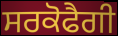
ਸਰਕੋਫੈਗੀ